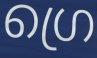
ഗ്രെ